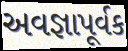
અવજ્ઞાપૂર્વક